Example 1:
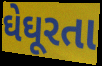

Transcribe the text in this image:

ઘેઘૂરતા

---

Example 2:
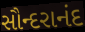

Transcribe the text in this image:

સૌન્દરાનંદ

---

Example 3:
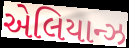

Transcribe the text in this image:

એલિયાન્ઝ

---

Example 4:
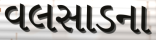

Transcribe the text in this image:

વલસાડના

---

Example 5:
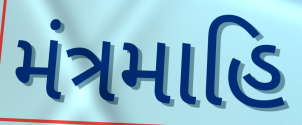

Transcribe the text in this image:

મંત્રમાહિ